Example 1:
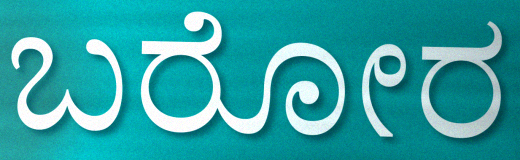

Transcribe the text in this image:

ಬರೋರ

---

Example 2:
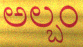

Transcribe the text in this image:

ಅಲ್ಬಂ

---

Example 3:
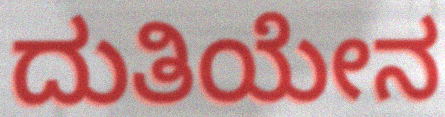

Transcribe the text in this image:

ದುತಿಯೇನ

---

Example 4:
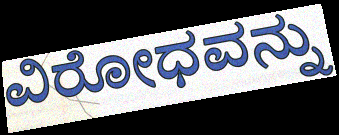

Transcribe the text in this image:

ವಿರೋಧವನ್ನು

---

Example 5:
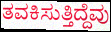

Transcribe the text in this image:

ತವಕಿಸುತ್ತಿದ್ದೆವು